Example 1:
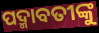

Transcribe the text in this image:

ପଦ୍ମାବତୀଙ୍କୁ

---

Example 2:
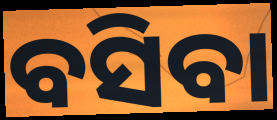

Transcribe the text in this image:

ବସିବା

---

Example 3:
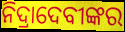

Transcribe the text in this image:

ନିଦ୍ରାଦେବୀଙ୍କର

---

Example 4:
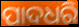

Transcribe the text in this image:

ପାଦଧରି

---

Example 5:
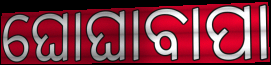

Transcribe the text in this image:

ଘୋଘାବାପା